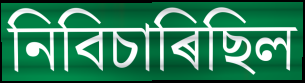
নিবিচাৰিছিল